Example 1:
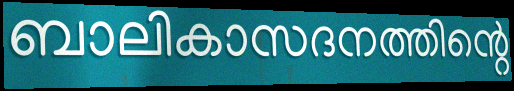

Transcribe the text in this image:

ബാലികാസദനത്തിന്റെ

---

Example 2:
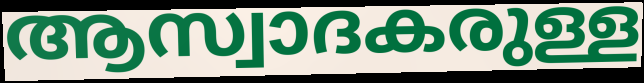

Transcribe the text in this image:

ആസ്വാദകരുള്ള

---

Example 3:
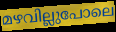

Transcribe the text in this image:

മഴവില്ലുപോലെ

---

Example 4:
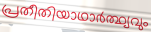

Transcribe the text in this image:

പ്രതീതിയാഥാർത്ഥ്യവും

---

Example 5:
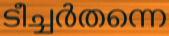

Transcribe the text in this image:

ടീച്ചർതന്നെ